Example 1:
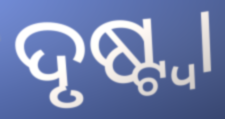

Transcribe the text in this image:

ଦୃଷ୍ଟ୍ବା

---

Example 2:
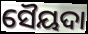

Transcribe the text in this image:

ସୈୟଦା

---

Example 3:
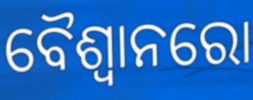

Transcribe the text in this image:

ବୈଶ୍ୱାନରୋ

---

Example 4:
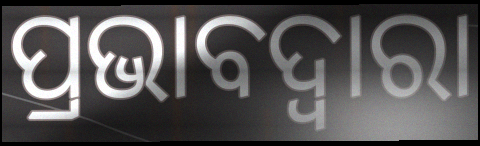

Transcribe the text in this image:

ପ୍ରଭାବଦ୍ୱାରା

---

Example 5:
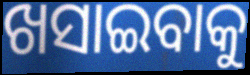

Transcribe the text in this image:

ଖସାଇବାକୁ